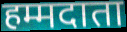
हम्मदाता